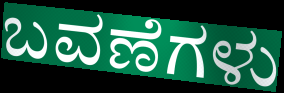
ಬವಣೆಗಳು